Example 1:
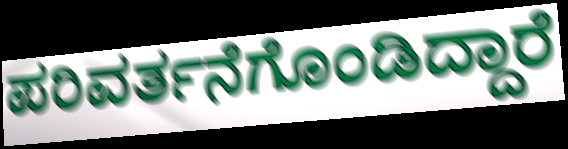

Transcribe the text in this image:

ಪರಿವರ್ತನೆಗೊಂಡಿದ್ದಾರೆ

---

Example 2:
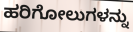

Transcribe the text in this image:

ಹರಿಗೋಲುಗಳನ್ನು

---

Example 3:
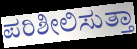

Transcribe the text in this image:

ಪರಿಶೀಲಿಸುತ್ತಾ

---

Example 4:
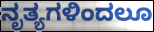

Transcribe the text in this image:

ನೃತ್ಯಗಳಿಂದಲೂ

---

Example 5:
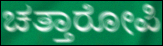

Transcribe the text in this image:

ಚತ್ತಾರೋಪಿ